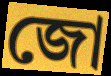
জো